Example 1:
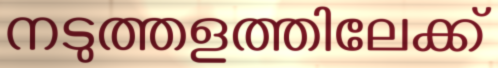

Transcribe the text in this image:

നടുത്തളത്തിലേക്ക്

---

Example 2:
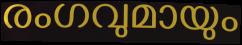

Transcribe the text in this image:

രംഗവുമായും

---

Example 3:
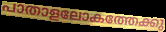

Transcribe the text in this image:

പാതാളലോകത്തേക്കു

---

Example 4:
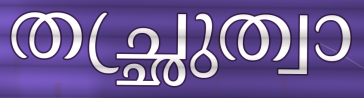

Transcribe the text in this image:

തച്ഛ്രുത്വാ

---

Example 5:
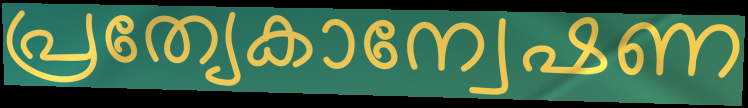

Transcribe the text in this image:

പ്രത്യേകാന്വേഷണ